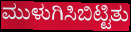
ಮುಳುಗಿಸಿಬಿಟ್ಟಿತು